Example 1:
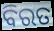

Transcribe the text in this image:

ବିରତ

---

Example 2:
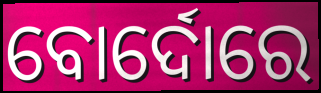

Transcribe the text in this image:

ବୋର୍ଦୋରେ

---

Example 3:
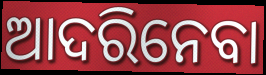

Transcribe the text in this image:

ଆଦରିନେବା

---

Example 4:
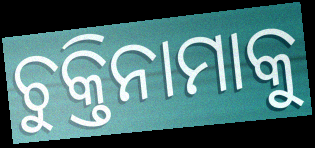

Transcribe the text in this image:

ଚୁକ୍ତିନାମାକୁ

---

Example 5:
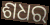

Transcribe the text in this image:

ଶଧର